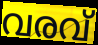
വരവ്